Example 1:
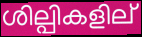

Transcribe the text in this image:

ശില്പികളില്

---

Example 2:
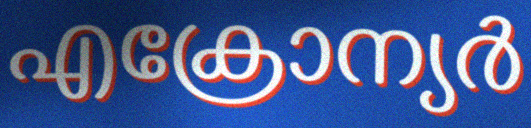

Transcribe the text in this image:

എക്രോന്യർ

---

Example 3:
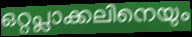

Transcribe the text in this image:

ഒറ്റപ്ലാക്കലിനെയും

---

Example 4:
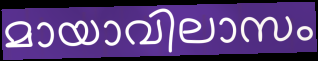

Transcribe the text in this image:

മായാവിലാസം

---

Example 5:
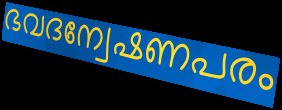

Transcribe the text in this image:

ഭവദന്വേഷണപരം